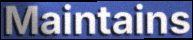
Maintains